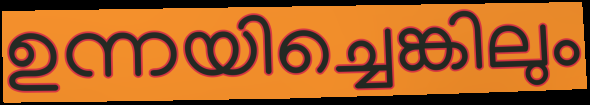
ഉന്നയിച്ചെങ്കിലും